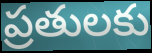
ప్రతులకు